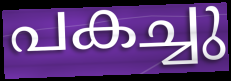
പകച്ചു